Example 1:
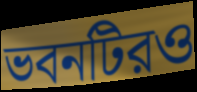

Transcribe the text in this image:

ভবনটিরও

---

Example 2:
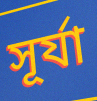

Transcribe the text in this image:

সূর্যা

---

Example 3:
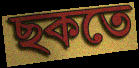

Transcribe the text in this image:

ছকতে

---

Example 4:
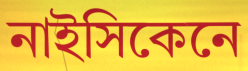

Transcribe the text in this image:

নাইসিকেনে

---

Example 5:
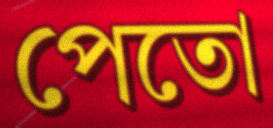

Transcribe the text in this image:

পেতো